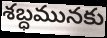
శబ్ధమునకు